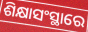
ଶିକ୍ଷାସଂସ୍ଥାରେ